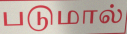
படுமால்